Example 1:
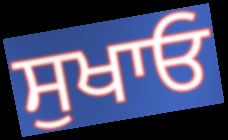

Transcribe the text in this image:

ਸੁਖਾਓ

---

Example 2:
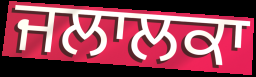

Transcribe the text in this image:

ਜਲਾਲਕਾ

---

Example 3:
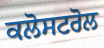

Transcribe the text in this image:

ਕਲੋਸਟਰੋਲ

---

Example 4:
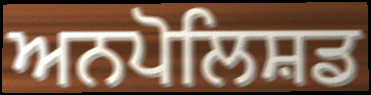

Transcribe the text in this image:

ਅਨਪੋਲਿਸ਼ਡ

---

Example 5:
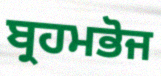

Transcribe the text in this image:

ਬ੍ਰਹਮਭੋਜ